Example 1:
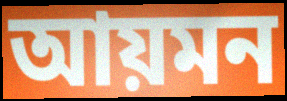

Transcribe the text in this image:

আয়মন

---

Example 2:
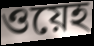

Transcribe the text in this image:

ওয়েহ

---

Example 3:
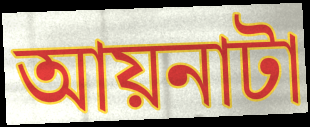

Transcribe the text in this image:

আয়নাটা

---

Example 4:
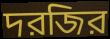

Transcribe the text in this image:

দরজির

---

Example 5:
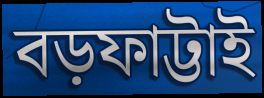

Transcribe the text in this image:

বড়ফাট্টাই